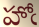
హోఁ